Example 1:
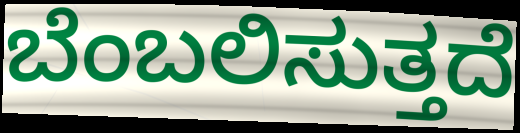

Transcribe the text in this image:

ಬೆಂಬಲಿಸುತ್ತದೆ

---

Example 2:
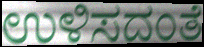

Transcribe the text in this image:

ಉಳಿಸದಂತೆ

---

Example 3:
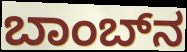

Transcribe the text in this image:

ಬಾಂಬ್‍ನ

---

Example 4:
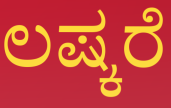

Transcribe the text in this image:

ಲಷ್ಕರೆ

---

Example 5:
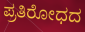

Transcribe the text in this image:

ಪ್ರತಿರೋಧದ